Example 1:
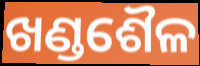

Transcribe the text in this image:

ଖଣ୍ଡଶୈଳ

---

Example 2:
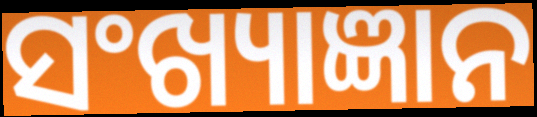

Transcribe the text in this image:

ସଂଖ୍ୟାଜ୍ଞାନ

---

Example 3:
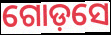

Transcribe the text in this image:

ଗୋଡ଼ସେ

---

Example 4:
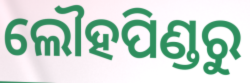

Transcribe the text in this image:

ଲୌହପିଣ୍ଡରୁ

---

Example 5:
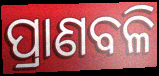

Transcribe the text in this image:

ପ୍ରାଣବଳି